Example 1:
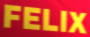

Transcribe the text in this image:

FELIX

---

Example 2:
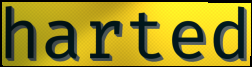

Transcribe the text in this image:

harted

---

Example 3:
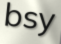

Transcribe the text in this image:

bsy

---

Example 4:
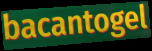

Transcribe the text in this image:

bacantogel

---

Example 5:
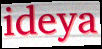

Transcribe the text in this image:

ideya